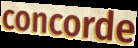
concorde